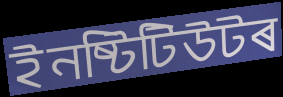
ইনষ্টিটিউটৰ